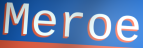
Meroe